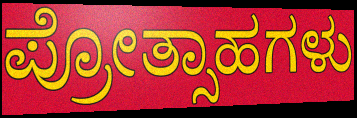
ಪ್ರೋತ್ಸಾಹಗಳು